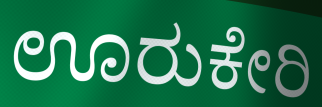
ಊರುಕೇರಿ